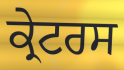
ਕ੍ਰੇਟਰਸ